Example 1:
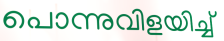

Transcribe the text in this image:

പൊന്നുവിളയിച്ച്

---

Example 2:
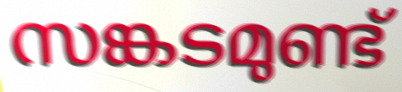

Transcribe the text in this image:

സങ്കടമുണ്ട്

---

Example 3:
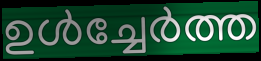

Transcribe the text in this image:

ഉൾച്ചേർത്ത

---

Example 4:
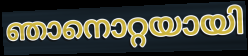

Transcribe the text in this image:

ഞാനൊറ്റയായി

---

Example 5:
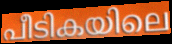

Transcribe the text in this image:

പീടികയിലെ